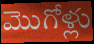
మొగోళ్లు